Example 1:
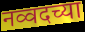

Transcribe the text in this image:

नव्वदच्या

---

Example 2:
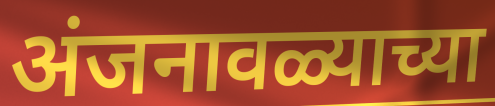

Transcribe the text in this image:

अंजनावळ्याच्या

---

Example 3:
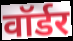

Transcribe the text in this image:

वॉर्डर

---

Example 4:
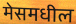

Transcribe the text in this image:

मेसमधील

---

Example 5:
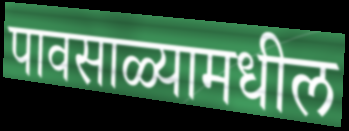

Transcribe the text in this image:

पावसाळ्यामधील